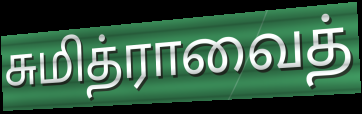
சுமித்ராவைத்